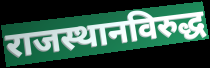
राजस्थानविरुद्ध